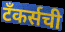
टँकर्सची